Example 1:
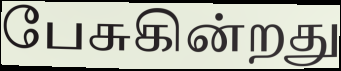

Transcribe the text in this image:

பேசுகின்றது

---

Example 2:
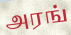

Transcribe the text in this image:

அரங்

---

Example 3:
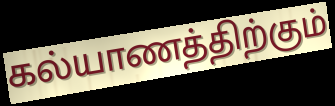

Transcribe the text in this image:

கல்யாணத்திற்கும்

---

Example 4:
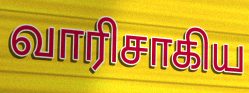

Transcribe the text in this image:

வாரிசாகிய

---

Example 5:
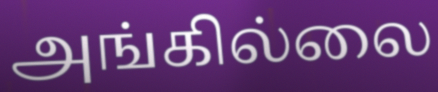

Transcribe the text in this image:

அங்கில்லை